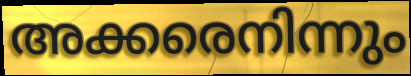
അക്കരെനിന്നും